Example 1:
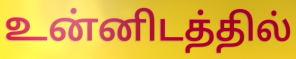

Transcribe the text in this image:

உன்னிடத்தில்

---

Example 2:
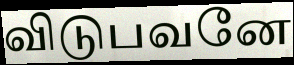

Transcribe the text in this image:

விடுபவனே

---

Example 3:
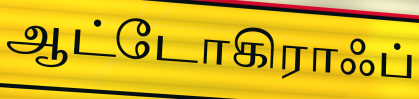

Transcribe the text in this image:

ஆட்டோகிராஃப்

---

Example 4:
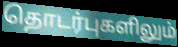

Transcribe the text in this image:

தொடர்புகளிலும்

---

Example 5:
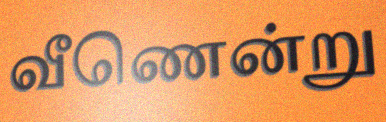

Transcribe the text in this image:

வீணென்று